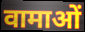
वामाओं